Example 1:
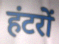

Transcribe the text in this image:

हंटरों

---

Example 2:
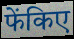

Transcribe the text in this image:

फेंकिए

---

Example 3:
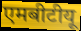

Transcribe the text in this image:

एमबीटीयू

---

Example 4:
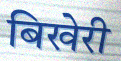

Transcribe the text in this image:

बिखेरी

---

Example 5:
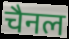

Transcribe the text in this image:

चैनल